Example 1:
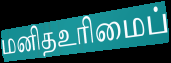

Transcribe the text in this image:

மனிதஉரிமைப்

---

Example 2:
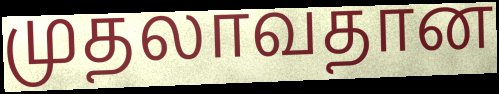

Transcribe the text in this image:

முதலாவதான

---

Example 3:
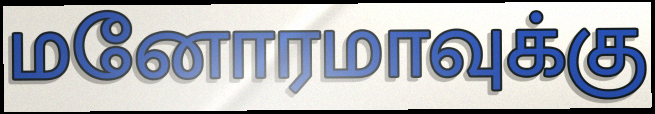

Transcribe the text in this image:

மனோரமாவுக்கு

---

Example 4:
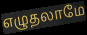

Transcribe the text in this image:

எழுதலாமே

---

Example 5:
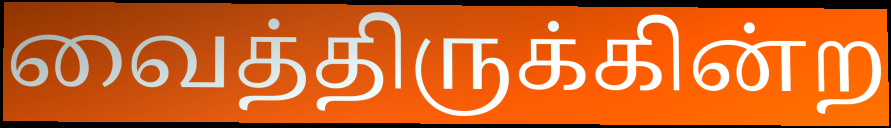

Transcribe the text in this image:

வைத்திருக்கின்ற